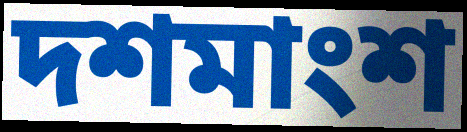
দশমাংশ